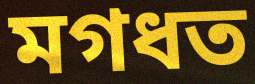
মগধত